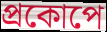
প্রকোপে